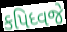
કપિધ્વજે